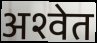
अश्वेत